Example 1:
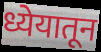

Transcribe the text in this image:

ध्येयातून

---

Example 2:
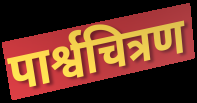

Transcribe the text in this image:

पार्श्वचित्रण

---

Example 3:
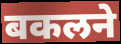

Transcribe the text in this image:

बकलने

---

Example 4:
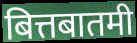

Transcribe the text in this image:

बित्तबातमी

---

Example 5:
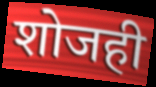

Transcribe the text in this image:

शोजही